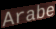
Arabe